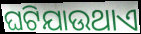
ଘଟିଯାଉଥାଏ